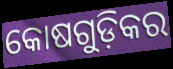
କୋଷଗୁଡ଼ିକର